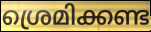
ശ്രെമിക്കണ്ട